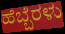
ಹೆಬ್ಬೆರಳು